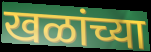
खळांच्या